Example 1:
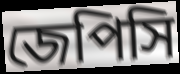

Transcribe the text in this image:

জেপিসি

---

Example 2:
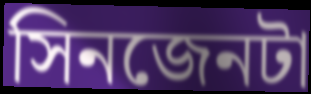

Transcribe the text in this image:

সিনজেনটা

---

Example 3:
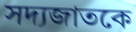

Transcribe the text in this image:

সদ্যজাতকে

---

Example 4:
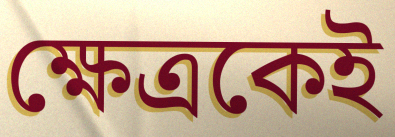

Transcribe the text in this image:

ক্ষেত্রকেই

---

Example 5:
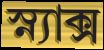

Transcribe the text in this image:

স্ন্যাক্স